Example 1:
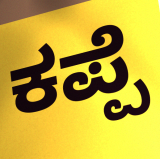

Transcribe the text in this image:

ಕಪ್ಪೆ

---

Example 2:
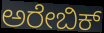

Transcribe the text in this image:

ಅರೇಬಿಕ್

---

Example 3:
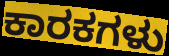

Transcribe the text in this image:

ಕಾರಕಗಳು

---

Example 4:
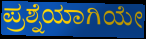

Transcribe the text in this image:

ಪ್ರಶ್ನೆಯಾಗಿಯೇ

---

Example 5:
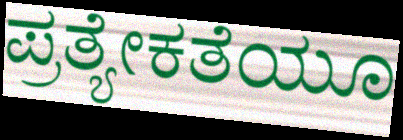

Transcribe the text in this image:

ಪ್ರತ್ಯೇಕತೆಯೂ